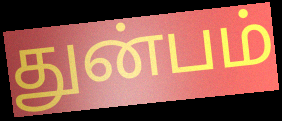
துன்பம்